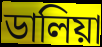
ডালিয়া